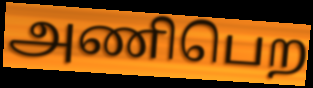
அணிபெற